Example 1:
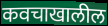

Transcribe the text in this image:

कवचाखालील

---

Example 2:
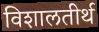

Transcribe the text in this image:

विशालतीर्थ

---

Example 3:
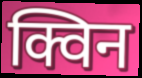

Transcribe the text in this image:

क्विन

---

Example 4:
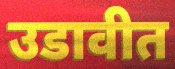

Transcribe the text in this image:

उडावीत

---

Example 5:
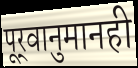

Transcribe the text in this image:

पूर्वानुमानही